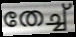
തേച്ച്